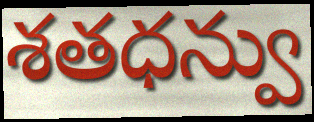
శతధన్వు